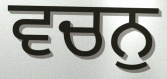
ਵਚਨੁ